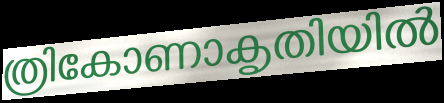
ത്രികോണാകൃതിയിൽ